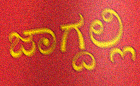
ಜಾಗ್ದಲ್ಲಿ